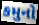
કમુનો